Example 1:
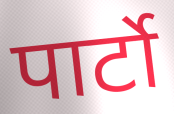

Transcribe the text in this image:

पार्टो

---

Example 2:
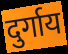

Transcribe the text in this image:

दुर्गाय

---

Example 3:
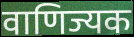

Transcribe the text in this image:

वाणिज्यक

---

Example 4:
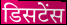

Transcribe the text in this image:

डिसटेंस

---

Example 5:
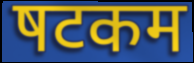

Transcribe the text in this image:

षटकम